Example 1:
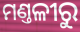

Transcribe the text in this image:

ମଣ୍ତଳୀରୁ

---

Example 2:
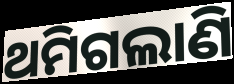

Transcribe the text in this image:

ଥମିଗଲାଣି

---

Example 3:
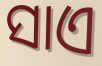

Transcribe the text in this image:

ସାଏ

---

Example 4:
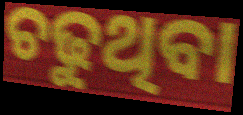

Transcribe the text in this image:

ଚଢୁଥିବା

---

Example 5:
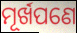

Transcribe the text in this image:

ମୂର୍ଖପଣେ